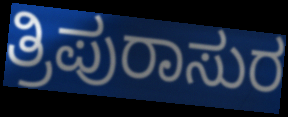
ತ್ರಿಪುರಾಸುರ